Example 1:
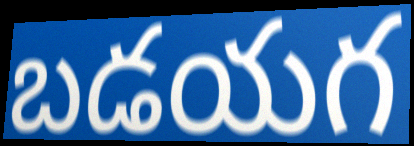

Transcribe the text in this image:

బడయగ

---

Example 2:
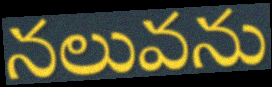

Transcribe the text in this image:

నలువను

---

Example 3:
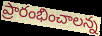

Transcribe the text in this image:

ప్రారంభించాలన్న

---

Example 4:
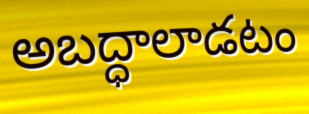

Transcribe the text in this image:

అబద్ధాలాడటం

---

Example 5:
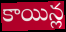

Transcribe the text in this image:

కాయిన్ల